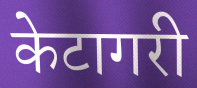
केटागरी